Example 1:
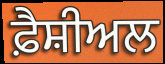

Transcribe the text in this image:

ਫ਼ੈਸ਼ੀਅਲ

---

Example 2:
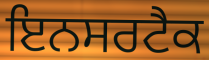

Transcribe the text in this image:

ਇਨਸਰਟੈਕ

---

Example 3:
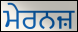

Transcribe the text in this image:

ਮੇਰਨਜ਼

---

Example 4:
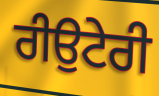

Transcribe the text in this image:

ਰੀਉਟੇਰੀ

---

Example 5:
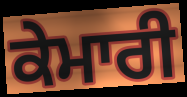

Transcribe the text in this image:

ਕੇਮਾਰੀ